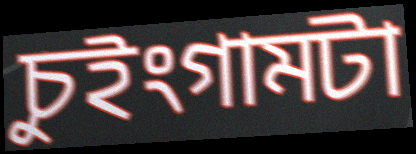
চুইংগামটা